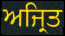
ਅਜ੍ਰਿਤ